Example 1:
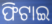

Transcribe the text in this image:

ଫିଟାଇ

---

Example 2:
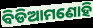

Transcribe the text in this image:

ବିଡିଆମଣୋହି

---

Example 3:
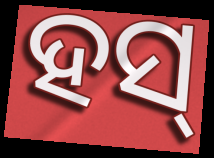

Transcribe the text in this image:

ହସ୍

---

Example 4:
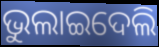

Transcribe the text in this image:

ଭୁଲାଇଦେଲି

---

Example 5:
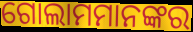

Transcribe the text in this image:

ଗୋଲାମମାନଙ୍କର